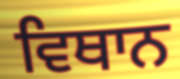
ਵਿਥਾਨ